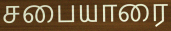
சபையாரை